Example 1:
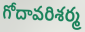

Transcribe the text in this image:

గోదావరిశర్మ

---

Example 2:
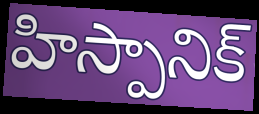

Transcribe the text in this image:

హిస్పానిక్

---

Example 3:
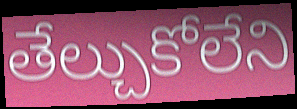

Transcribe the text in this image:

తేల్చుకోలేని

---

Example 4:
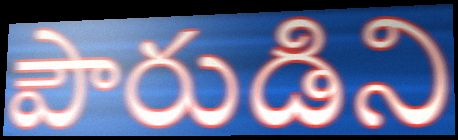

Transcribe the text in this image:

పౌరుడిని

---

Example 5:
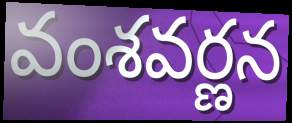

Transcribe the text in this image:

వంశవర్ణన